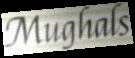
Mughals